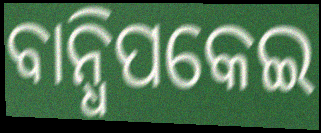
ବାନ୍ଧିପକେଇ